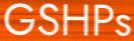
GSHPs